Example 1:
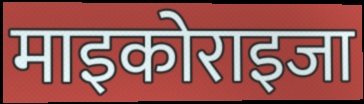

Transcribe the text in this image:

माइकोराइजा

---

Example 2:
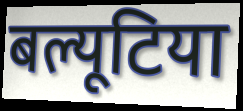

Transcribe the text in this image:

बल्यूटिया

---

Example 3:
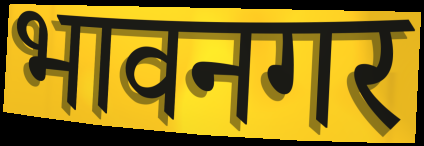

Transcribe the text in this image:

भावनगर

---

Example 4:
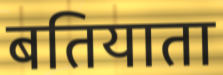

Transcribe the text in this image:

बतियाता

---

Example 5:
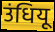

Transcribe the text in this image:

उंधियू